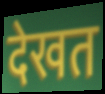
देखत